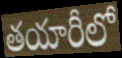
తయారీలో